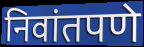
निवांतपणे